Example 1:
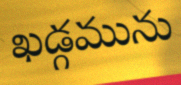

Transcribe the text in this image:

ఖడ్గమును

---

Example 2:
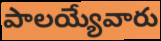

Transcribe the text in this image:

పాలయ్యేవారు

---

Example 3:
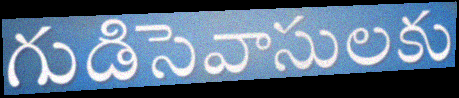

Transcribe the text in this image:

గుడిసెవాసులకు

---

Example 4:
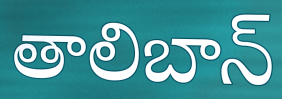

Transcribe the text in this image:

తాలిబాన్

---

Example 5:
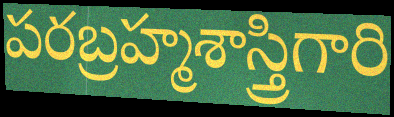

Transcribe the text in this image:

పరబ్రహ్మశాస్త్రిగారి